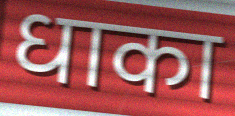
धाका